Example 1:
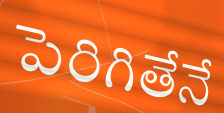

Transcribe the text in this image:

పెరిగితేనే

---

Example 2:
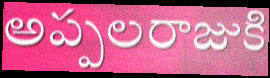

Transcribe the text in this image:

అప్పలరాజుకి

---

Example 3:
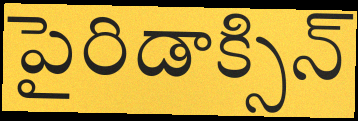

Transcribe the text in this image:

పైరిడాక్సిన్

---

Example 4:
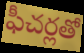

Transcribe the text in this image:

ఫీచర్లతో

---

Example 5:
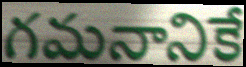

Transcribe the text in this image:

గమనానికే